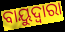
ବାୟୁଦ୍ୱାରା